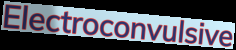
Electroconvulsive